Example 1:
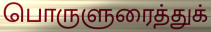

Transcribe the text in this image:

பொருளுரைத்துக்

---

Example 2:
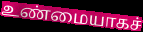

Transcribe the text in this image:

உண்மையாகச்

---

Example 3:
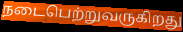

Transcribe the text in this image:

நடைபெற்றுவருகிறது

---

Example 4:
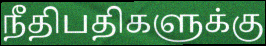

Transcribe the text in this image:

நீதிபதிகளுக்கு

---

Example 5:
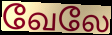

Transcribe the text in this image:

வேலே